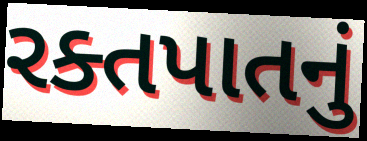
રક્તપાતનું